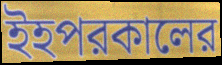
ইহপরকালের